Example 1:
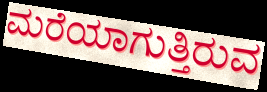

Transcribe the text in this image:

ಮರೆಯಾಗುತ್ತಿರುವ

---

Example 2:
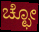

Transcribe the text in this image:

ಚ್ಛೋ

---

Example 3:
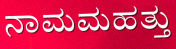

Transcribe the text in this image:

ನಾಮಮಹತ್ತು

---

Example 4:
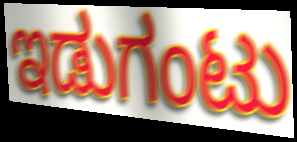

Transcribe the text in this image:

ಇಡುಗಂಟು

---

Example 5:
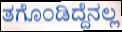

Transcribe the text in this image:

ತಗೊಂಡಿದ್ದೆನಲ್ಲ